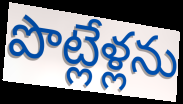
పొట్లేళ్లను